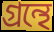
গ্ৰন্থে